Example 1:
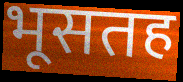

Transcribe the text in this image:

भूसतह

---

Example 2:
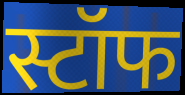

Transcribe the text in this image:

स्टॉफ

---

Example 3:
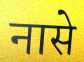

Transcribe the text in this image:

नासे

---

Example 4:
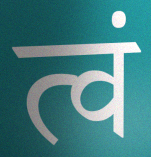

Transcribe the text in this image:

त्वं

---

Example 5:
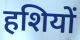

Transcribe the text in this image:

हशियों